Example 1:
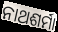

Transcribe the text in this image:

ନାଥଶର୍ମା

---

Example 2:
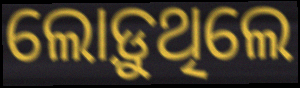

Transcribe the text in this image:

ଲୋଡ଼ୁଥିଲେ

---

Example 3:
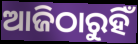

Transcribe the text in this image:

ଆଜିଠାରୁହିଁ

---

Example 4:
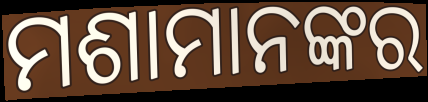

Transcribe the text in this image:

ମଶାମାନଙ୍କର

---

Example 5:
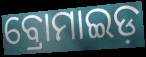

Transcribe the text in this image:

ବ୍ରୋମାଇଡ଼